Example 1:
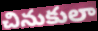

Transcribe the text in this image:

చినుకులా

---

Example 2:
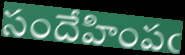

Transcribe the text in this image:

సందేహింపఁ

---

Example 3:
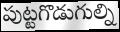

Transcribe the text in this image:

పుట్టగొడుగుల్ని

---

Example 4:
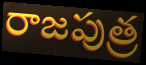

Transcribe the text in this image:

రాజపుత్ర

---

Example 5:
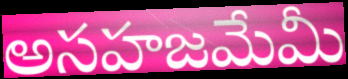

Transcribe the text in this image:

అసహజమేమీ